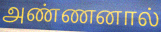
அண்ணனால்